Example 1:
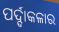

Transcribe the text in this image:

ପର୍ଦ୍ଦାକଳାର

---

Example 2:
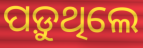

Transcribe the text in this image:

ପଡ଼ୁଥିଲେ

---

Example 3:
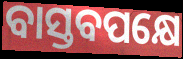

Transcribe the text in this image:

ବାସ୍ତବପକ୍ଷେ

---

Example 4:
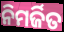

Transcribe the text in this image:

ନିମର୍ଜିତ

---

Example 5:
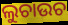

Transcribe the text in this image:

ଲୁଚାଉଚ